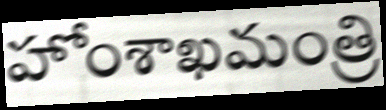
హోంశాఖమంత్రి